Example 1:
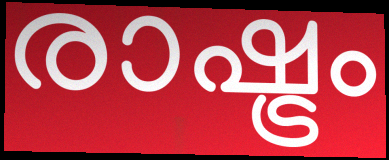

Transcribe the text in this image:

രാഷ്ട്രം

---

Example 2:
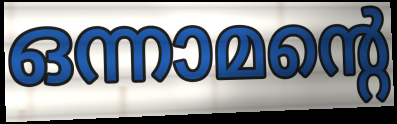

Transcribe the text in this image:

ഒന്നാമന്റെ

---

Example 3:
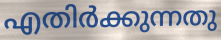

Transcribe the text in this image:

എതിർക്കുന്നതു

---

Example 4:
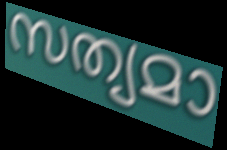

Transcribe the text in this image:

സത്യമാ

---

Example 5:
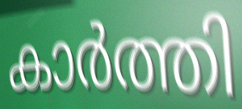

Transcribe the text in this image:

കാർത്തി